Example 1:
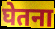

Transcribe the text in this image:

घेतना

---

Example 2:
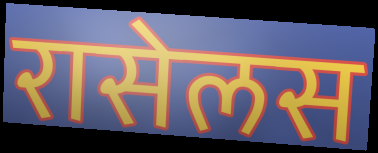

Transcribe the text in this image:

रासेलस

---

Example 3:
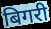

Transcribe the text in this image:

बिगरी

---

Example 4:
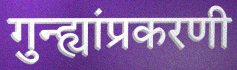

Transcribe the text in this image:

गुन्ह्यांप्रकरणी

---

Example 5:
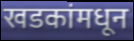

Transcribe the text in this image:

खडकांमधून